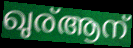
ഖുര്ആന്